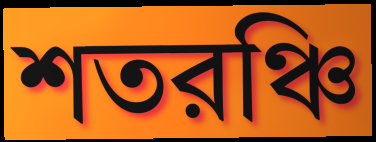
শতরঞ্চি